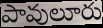
పావులూరు